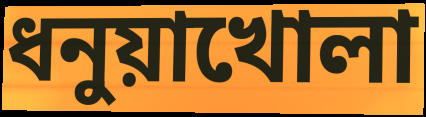
ধনুয়াখোলা